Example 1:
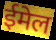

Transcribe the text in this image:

ईमेल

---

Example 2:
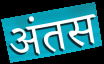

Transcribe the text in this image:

अंतस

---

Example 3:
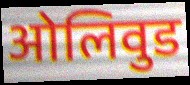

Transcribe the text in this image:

ओलिवुड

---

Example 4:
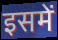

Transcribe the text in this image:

इसमें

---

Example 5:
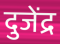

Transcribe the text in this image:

दुजेंद्र